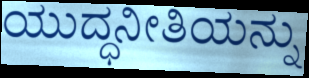
ಯುದ್ಧನೀತಿಯನ್ನು